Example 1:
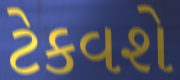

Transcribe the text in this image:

ટેકવશે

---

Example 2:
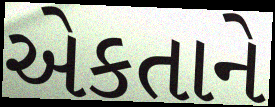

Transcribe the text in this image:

એકતાને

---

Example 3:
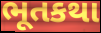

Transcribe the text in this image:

ભૂતકથા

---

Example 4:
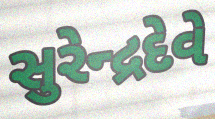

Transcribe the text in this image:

સુરેન્દ્રદેવે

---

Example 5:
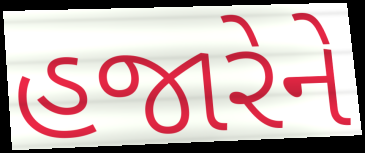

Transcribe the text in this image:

હજારેને